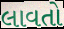
લાવતો